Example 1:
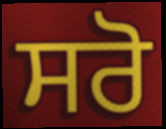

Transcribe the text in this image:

ਸਰੋ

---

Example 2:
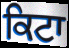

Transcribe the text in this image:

ਕਿਟਾ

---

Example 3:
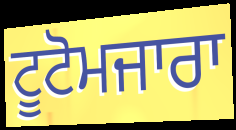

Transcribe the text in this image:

ਟੂਟੋਮਜਾਰਾ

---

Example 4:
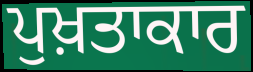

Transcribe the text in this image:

ਪੁਖ਼ਤਾਕਾਰ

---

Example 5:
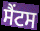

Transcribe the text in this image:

ਸੈਂਟਸ